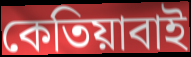
কেতিয়াবাই